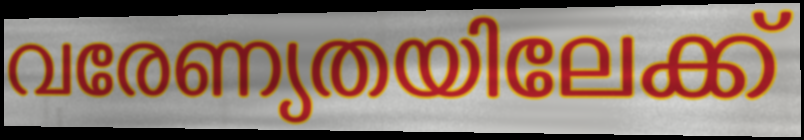
വരേണ്യതയിലേക്ക്